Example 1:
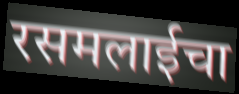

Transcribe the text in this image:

रसमलाईचा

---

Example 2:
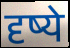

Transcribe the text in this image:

दृष्ये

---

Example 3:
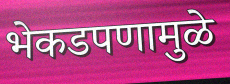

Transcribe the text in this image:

भेकडपणामुळे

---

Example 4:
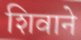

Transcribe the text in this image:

शिवाने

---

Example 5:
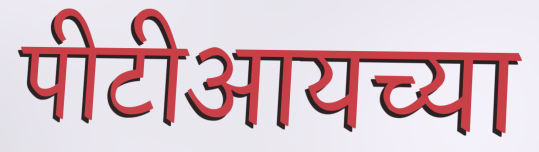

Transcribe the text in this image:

पीटीआयच्या